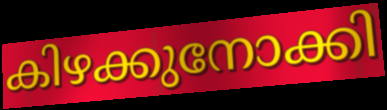
കിഴക്കുനോക്കി